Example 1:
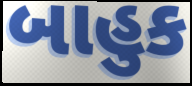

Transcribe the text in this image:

બાહુક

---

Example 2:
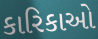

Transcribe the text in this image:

કારિકાઓ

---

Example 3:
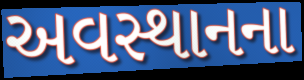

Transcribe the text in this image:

અવસ્થાનના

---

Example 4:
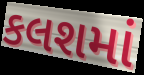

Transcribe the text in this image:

કલશમાં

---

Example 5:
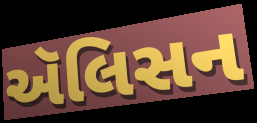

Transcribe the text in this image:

ઍલિસન